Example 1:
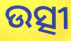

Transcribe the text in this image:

ଉତ୍ସୀ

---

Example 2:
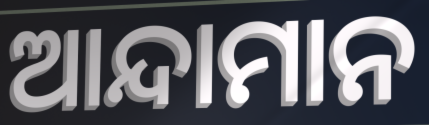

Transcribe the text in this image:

ଆନ୍ଦାମାନ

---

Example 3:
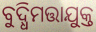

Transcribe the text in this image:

ବୁଦ୍ଧିମତ୍ତାଯୁକ୍ତ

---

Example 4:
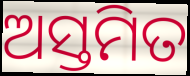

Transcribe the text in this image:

ଅସ୍ତମିତ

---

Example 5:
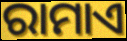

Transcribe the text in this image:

ରାମାଏ